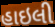
હાઇલી